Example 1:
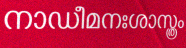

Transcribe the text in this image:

നാഡീമനഃശാസ്ത്രം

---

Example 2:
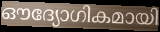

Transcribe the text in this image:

ഔദ്യോഗികമായി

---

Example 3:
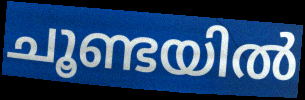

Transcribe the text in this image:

ചൂണ്ടയിൽ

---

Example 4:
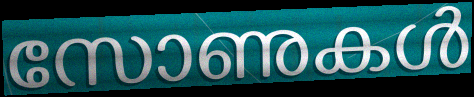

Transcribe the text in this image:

സോണുകൾ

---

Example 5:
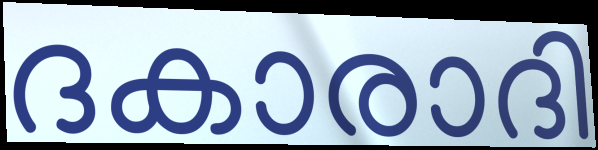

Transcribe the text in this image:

ദകാരാദി